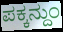
ಪಕ್ಕನ್ದುಂ